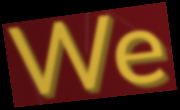
We